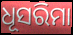
ଧୂସରିମା